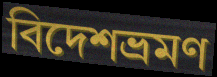
বিদেশভ্রমণ